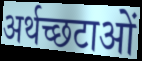
अर्थच्छटाओं